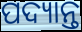
ପଦ୍ୟାନ୍ତ